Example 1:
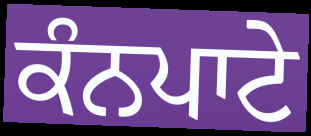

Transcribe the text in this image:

ਕੰਨਪਾਟੇ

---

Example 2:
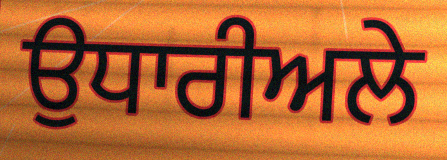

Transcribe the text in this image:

ਉਧਾਰੀਅਲੇ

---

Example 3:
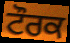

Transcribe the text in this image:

ਟੌਰਕ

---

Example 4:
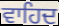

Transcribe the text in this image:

ਵਾਹਿਦ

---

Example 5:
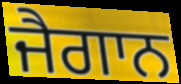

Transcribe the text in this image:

ਜੈਗਾਨ